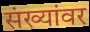
संख्यांवर